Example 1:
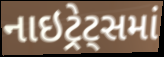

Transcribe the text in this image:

નાઇટ્રેટ્સમાં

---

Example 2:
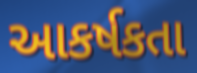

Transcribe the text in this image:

આકર્ષકતા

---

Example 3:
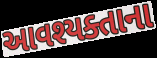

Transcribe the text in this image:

આવશ્યક્તાના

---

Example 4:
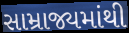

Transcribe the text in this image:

સામ્રાજ્યમાંથી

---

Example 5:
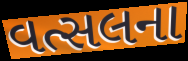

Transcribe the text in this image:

વત્સલના